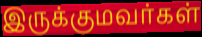
இருக்குமவர்கள்